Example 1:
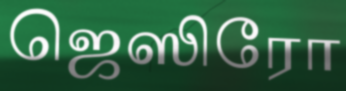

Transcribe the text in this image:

ஜெஸிரோ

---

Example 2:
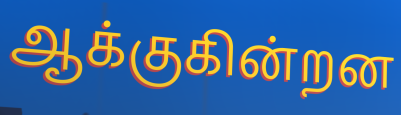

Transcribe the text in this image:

ஆக்குகின்றன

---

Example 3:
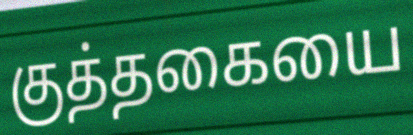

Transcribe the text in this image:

குத்தகையை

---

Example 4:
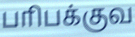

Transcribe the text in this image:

பரிபக்குவ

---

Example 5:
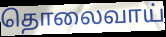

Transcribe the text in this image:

தொலைவாய்